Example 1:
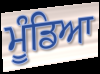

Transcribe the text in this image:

ਮੂੰਡਿਆ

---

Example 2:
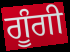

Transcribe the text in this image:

ਗੂੰਗੀ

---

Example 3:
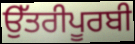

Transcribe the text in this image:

ਉੱਤਰੀਪੂਰਬੀ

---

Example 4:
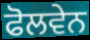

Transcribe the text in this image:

ਫੋਲਵੇਨ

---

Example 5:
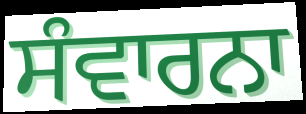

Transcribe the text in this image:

ਸੰਵਾਰਨਾ